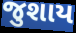
જુશાય